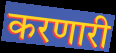
करणारी